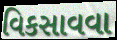
વિકસાવવા